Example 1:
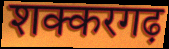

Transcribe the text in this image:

शक्करगढ़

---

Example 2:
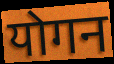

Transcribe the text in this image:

योगन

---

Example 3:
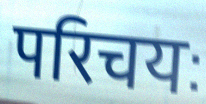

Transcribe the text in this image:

परिचयः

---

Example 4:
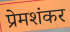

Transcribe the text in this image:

प्रेमशंकर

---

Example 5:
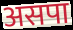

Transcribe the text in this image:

असपा